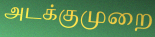
அடக்குமுறை